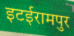
इटईरामपुर